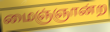
மைஞ்ஞான்ற